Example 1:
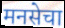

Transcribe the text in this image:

मनसेचा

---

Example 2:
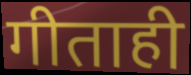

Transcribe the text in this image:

गीताही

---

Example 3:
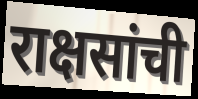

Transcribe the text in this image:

राक्षसांची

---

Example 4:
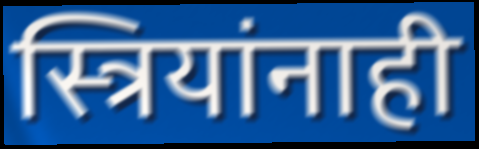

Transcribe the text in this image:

स्त्रियांनाही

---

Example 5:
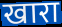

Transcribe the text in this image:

खारा